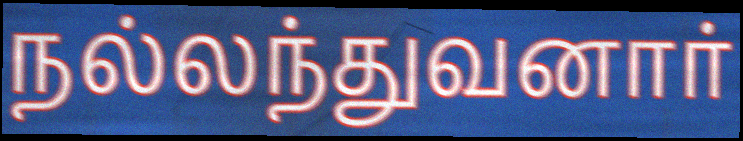
நல்லந்துவனார்